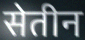
सेतीन